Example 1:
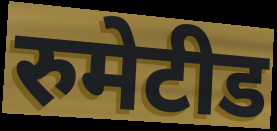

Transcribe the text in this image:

रुमेटीड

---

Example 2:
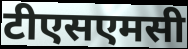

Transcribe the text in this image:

टीएसएमसी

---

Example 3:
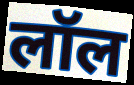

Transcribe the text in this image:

लॉल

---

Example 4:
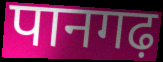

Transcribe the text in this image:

पानगढ़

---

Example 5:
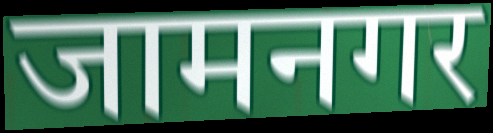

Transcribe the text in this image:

जामनगर